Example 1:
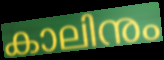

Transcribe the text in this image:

കാലിനും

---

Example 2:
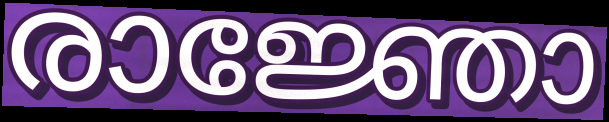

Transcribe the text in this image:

രാജ്ഞോ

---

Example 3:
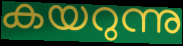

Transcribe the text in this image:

കയറുന്നു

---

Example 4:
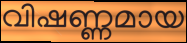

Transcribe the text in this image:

വിഷണ്ണമായ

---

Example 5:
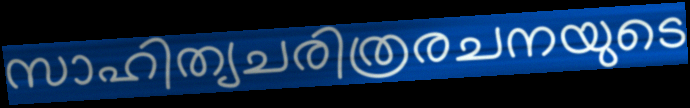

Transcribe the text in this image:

സാഹിത്യചരിത്രരചനയുടെ